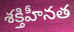
శక్తిహీనత